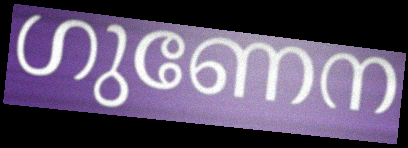
ഗുണേന